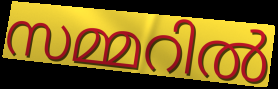
സമ്മറിൽ